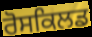
ਰੋਸਕਿਲਡ